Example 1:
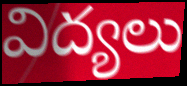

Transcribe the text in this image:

విద్యలు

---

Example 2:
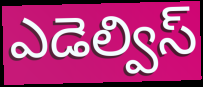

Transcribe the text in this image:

ఎడెల్విస్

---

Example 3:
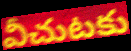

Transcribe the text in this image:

వీచుటకు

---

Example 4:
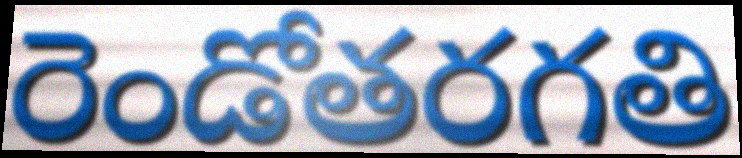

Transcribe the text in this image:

రెండోతరగతి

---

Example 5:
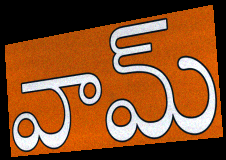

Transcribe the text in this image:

వామ్